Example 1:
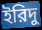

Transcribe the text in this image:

ইরিদু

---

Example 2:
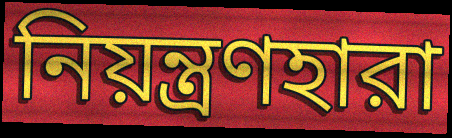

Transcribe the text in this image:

নিয়ন্ত্রণহারা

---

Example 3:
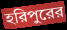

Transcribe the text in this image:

হরিপুরের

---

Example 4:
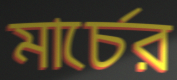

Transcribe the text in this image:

মার্চের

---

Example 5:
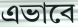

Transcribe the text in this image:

এভাবে